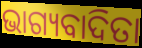
ଭାଗ୍ୟବାଦିତା